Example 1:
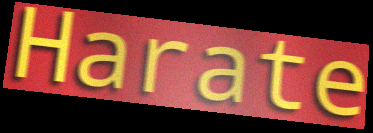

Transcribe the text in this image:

Harate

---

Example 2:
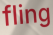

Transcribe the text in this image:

fling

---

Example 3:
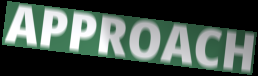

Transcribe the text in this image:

APPROACH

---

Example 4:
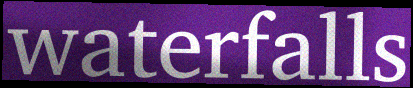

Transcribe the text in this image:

waterfalls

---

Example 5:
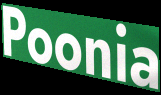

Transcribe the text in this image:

Poonia